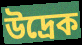
উদ্ৰেক